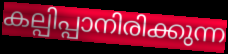
കല്പിപ്പാനിരിക്കുന്ന